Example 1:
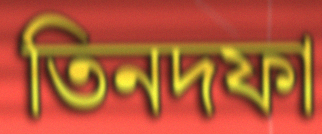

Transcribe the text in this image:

তিনদফা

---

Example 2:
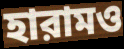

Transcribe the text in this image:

হারামও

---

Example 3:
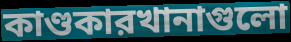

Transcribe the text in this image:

কাণ্ডকারখানাগুলো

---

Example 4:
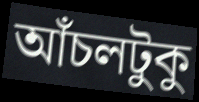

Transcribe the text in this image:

আঁচলটুকু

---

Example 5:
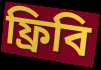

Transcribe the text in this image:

ফ্রিবি